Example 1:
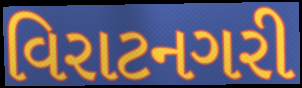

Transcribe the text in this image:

વિરાટનગરી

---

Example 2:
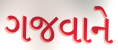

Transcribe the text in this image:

ગજવાને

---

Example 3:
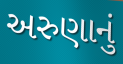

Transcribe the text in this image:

અરુણાનું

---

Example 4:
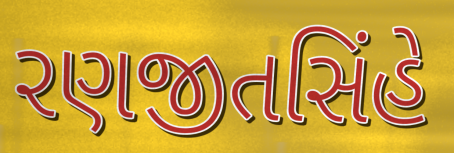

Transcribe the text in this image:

રણજીતસિંહે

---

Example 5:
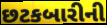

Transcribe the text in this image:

છટકબારીની